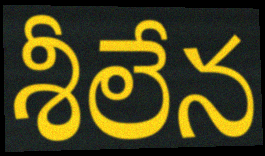
శీలేన